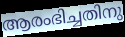
ആരംഭിച്ചതിനു